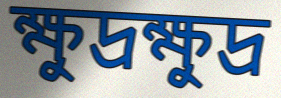
ক্ষুদ্রক্ষুদ্র